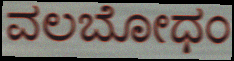
ವಲಬೋಧಂ